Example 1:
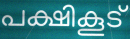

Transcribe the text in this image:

പക്ഷികൂട്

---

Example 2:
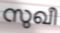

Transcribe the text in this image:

സുഖീ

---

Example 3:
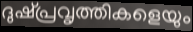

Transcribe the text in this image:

ദുഷ്പ്രവൃത്തികളെയും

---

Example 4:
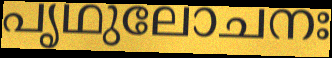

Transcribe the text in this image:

പൃഥുലോചനഃ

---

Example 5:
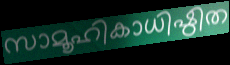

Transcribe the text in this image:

സാമൂഹികാധിഷ്ഠിത